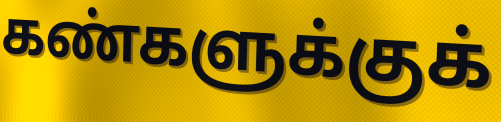
கண்களுக்குக்